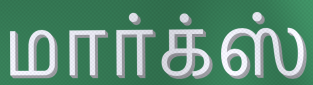
மார்க்ஸ்